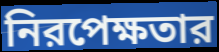
নিরপেক্ষতার